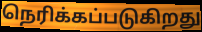
நெரிக்கப்படுகிறது